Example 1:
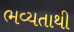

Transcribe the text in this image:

ભવ્યતાથી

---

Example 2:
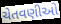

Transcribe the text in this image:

ચેતવણીઓ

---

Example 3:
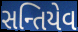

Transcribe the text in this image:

સન્તિયેવ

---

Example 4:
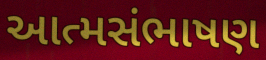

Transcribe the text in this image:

આત્મસંભાષણ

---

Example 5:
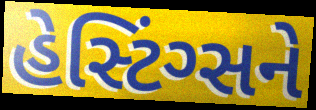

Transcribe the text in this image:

હેસ્ટિંગ્સને